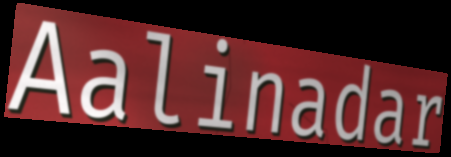
Aalinadar